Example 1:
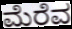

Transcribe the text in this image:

ಮೆರೆವ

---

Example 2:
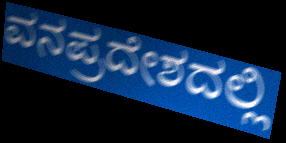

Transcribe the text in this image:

ವನಪ್ರದೇಶದಲ್ಲಿ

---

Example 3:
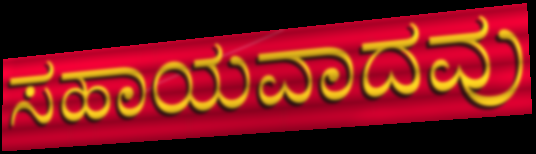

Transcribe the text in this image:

ಸಹಾಯವಾದವು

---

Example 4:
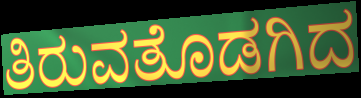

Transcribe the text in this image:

ತಿರುವತೊಡಗಿದ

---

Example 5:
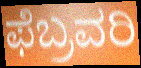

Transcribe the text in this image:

ಫೆಬ್ರವರಿ